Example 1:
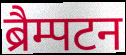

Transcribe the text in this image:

ब्रैम्पटन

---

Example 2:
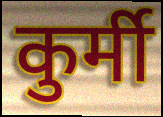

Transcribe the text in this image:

कुर्मी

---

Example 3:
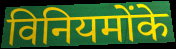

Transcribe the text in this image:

विनियमोंके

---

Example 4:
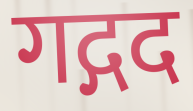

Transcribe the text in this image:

गद्गद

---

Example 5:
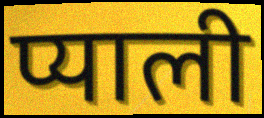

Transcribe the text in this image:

प्याली